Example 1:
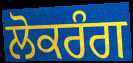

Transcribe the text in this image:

ਲੋਕਰੰਗ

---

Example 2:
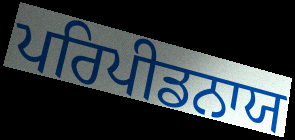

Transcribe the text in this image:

ਪਰਿਪੀਡਨਾਯ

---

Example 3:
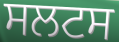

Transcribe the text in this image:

ਸਲਟਸ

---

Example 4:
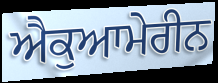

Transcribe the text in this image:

ਐਕੁਆਮੇਰੀਨ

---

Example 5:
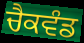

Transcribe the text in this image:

ਚੈਕਵੰਡ